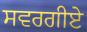
ਸਵਰਗੀਏ